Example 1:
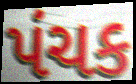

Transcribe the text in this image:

પંચક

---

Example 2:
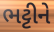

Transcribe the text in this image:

ભટ્ટીને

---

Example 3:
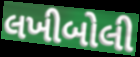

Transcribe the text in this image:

લખીબોલી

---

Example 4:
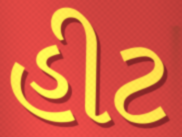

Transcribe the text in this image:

હીટ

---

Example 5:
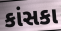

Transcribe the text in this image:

કાંસકા